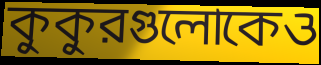
কুকুরগুলোকেও